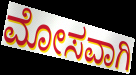
ಮೋಸವಾಗಿ